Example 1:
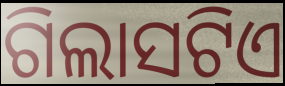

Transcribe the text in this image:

ଗିଲାସଟିଏ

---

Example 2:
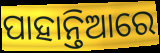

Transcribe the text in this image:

ପାହାନ୍ତିଆରେ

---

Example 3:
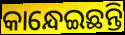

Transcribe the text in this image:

କାନ୍ଧେଇଛନ୍ତି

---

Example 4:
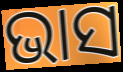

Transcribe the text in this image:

ଭାସ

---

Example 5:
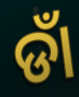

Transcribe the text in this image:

ଡାଁ